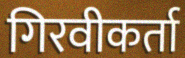
गिरवीकर्ता